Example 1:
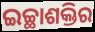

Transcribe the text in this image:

ଇଚ୍ଛାଶକ୍ତିର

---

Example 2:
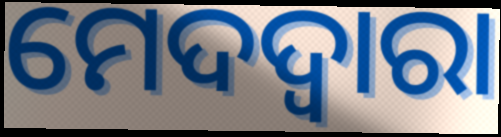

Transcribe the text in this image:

ମେଦଦ୍ଵାରା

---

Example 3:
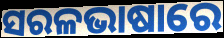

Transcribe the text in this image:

ସରଳଭାଷାରେ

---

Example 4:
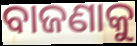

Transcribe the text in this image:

ବାଜଣାକୁ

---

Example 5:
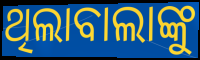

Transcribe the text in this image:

ଥିଲାବାଲାଙ୍କୁ